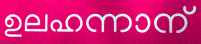
ഉലഹന്നാന്